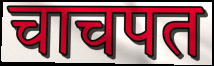
चाचपत